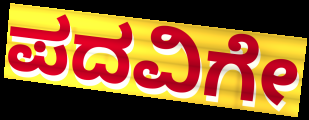
ಪದವಿಗೇ